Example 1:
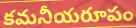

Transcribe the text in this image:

కమనీయరూపం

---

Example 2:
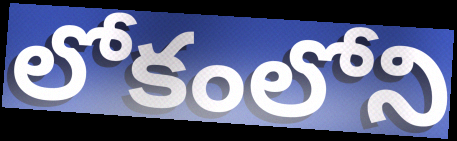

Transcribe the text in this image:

లోకంలోని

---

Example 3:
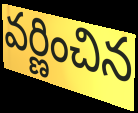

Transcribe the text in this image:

వర్ణించిన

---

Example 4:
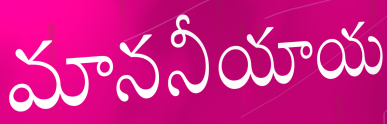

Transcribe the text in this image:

మాననీయాయ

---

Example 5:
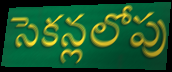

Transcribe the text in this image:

సెకన్లలోపు